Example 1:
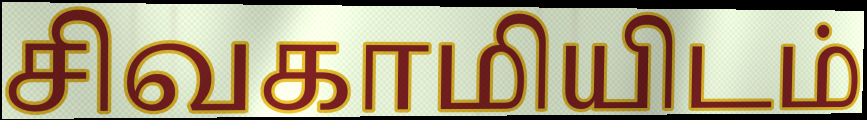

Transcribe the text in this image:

சிவகாமியிடம்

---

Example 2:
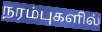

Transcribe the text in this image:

நரம்புகளில்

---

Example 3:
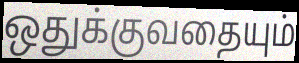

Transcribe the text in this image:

ஒதுக்குவதையும்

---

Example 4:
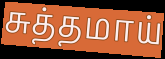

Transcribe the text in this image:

சுத்தமாய்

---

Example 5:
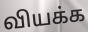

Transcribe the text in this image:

வியக்க